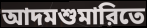
আদমশুমারিতে